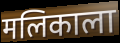
मलिकाला